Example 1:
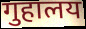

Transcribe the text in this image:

गुहालय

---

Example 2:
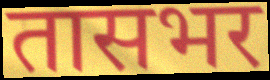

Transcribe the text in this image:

तासभर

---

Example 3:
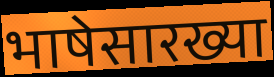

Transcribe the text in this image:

भाषेसारख्या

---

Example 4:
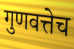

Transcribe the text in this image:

गुणवत्तेच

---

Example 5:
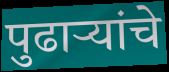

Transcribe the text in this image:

पुढाऱ्यांचे